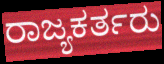
ರಾಜ್ಯಕರ್ತರು